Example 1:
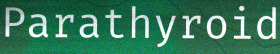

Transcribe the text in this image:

Parathyroid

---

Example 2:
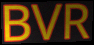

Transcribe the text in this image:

BVR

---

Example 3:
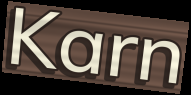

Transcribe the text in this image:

Karn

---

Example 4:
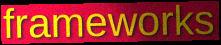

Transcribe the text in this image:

frameworks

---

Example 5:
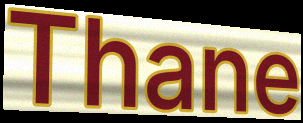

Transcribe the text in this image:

Thane